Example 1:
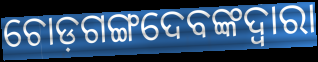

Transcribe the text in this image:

ଚୋଡ଼ଗଙ୍ଗଦେବଙ୍କଦ୍ୱାରା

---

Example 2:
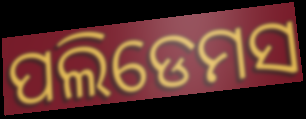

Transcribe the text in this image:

ପଲିଡେମସ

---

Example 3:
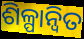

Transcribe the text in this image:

ଶିଳ୍ପାନ୍ବିତ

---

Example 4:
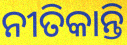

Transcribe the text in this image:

ନୀତିକାନ୍ତି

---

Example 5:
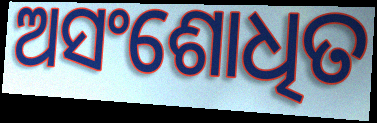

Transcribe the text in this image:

ଅସଂଶୋଧିତ